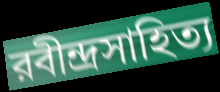
রবীন্দ্রসাহিত্য